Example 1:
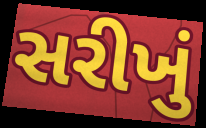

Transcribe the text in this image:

સરીખું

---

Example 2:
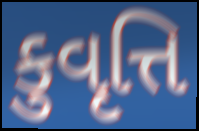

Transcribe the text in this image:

કુવૃત્તિ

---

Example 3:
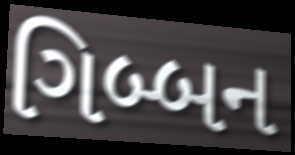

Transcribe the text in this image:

ગિબ્બન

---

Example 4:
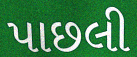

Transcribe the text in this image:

પાછલી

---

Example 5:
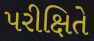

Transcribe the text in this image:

પરીક્ષિતે